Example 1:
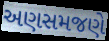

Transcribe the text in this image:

અણસમજણે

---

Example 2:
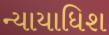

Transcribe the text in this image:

ન્યાયાધિશ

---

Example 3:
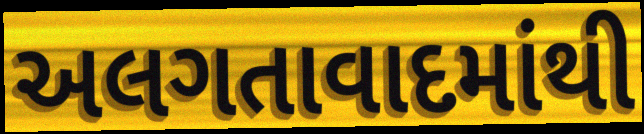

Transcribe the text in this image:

અલગતાવાદમાંથી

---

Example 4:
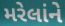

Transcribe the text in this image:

મરેલાંને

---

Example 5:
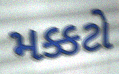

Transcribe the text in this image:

મક્કટો